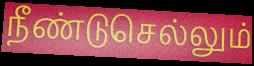
நீண்டுசெல்லும்